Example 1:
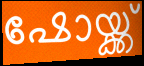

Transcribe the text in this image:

ഷോയ്ക്ക്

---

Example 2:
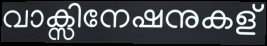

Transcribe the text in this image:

വാക്സിനേഷനുകള്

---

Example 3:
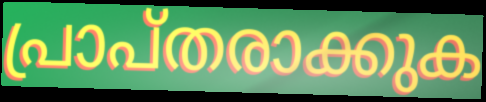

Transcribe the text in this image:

പ്രാപ്തരാക്കുക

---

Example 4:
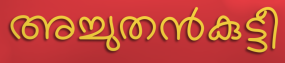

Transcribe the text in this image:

അച്ചുതൻകുട്ടീ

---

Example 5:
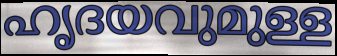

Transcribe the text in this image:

ഹൃദയവുമുള്ള